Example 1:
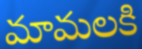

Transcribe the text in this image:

మామలకి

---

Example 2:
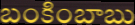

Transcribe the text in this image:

బంకింబాబు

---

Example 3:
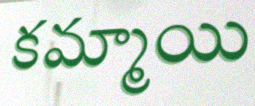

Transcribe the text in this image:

కమ్మాయి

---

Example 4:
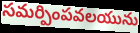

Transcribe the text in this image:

సమర్పింపవలయును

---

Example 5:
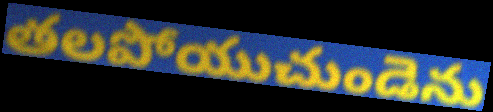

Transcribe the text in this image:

తలపోయుచుండెను